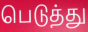
பெடுத்து